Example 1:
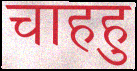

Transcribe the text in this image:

चाहहु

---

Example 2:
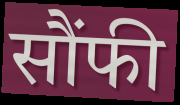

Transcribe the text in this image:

सौंफी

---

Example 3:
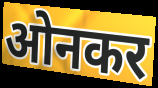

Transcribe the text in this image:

ओनकर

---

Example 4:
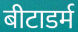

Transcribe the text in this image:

बीटाडर्म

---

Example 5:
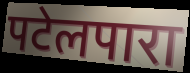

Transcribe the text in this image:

पटेलपारा